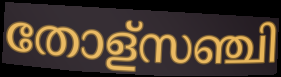
തോള്സഞ്ചി